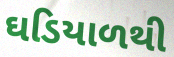
ઘડિયાળથી